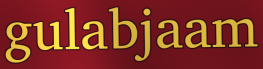
gulabjaam